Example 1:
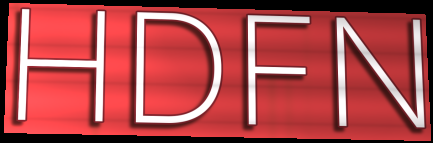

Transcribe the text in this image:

HDFN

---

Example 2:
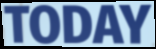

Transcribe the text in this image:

TODAY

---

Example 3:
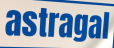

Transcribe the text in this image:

astragal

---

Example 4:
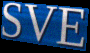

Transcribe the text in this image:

SVE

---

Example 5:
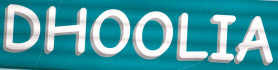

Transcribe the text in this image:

DHOOLIA